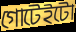
গোটেইটো